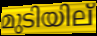
മുടിയില്